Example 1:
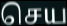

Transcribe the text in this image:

செய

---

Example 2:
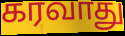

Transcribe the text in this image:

கரவாது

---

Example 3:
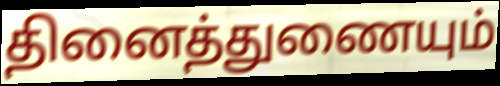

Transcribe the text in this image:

தினைத்துணையும்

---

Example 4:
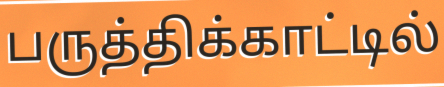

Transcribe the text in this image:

பருத்திக்காட்டில்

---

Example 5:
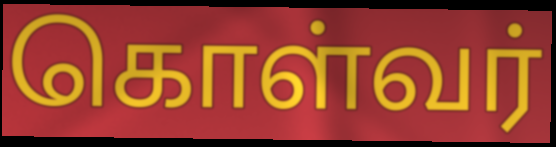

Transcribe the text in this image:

கொள்வர்